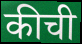
कीची